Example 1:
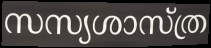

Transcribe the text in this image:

സസ്യശാസ്ത്ര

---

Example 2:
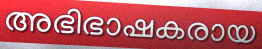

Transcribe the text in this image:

അഭിഭാഷകരായ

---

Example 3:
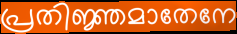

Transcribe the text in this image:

പ്രതിജ്ഞമാതേനേ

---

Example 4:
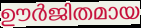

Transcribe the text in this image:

ഊർജിതമായ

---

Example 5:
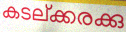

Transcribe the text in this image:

കടല്ക്കരക്കു